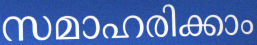
സമാഹരിക്കാം